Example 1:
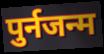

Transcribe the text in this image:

पुर्नजन्म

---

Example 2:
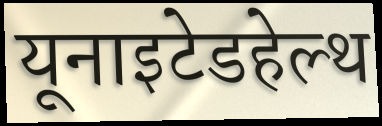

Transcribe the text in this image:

यूनाइटेडहेल्थ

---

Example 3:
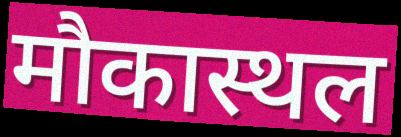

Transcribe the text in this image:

मौकास्थल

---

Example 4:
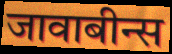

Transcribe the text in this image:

जावाबीन्स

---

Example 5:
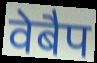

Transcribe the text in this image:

वेबैप